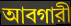
আবগারী